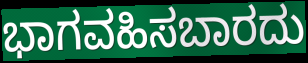
ಭಾಗವಹಿಸಬಾರದು